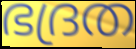
ഭദ്രത